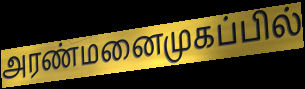
அரண்மனைமுகப்பில்